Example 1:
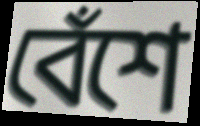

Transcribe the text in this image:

বেঁশে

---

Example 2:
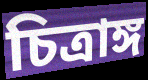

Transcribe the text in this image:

চিত্রাঙ্গ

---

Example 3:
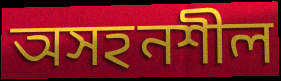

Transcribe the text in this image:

অসহনশীল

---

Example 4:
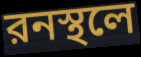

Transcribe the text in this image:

রনস্থলে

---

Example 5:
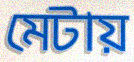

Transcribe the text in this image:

মেটায়